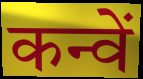
कन्वें